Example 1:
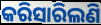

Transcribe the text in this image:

କରିସାରିଲଣି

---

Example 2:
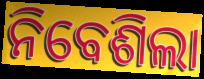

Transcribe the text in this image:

ନିବେଶିଲା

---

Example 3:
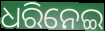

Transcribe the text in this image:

ଧରିନେଇ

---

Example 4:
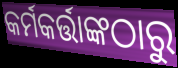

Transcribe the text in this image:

କର୍ମକର୍ତ୍ତାଙ୍କଠାରୁ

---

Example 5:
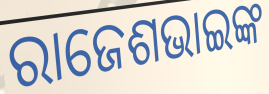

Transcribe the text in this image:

ରାଜେଶଭାଇଙ୍କ